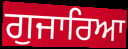
ਗੁਜਾਰਿਆ